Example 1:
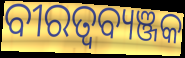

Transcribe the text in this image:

ବୀରତ୍ବବ୍ୟଞ୍ଜକ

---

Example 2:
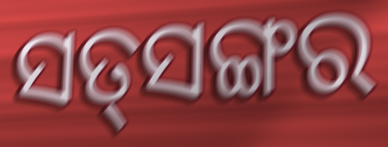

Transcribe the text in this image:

ସତ୍‌ସଙ୍ଗର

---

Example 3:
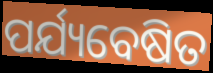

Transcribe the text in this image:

ପର୍ଯ୍ୟବେଷିତ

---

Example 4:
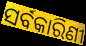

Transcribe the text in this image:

ସର୍ବକାରିଣୀ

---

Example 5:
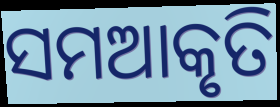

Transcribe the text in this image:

ସମଆକୃତି